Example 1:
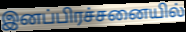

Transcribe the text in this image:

இனப்பிரச்சனையில்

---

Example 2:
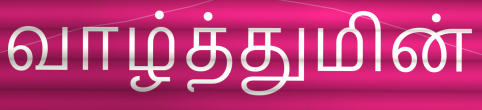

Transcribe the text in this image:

வாழ்த்துமின்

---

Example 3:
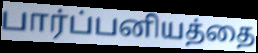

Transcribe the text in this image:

பார்ப்பனியத்தை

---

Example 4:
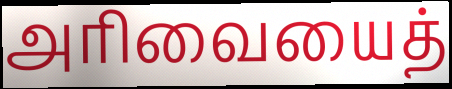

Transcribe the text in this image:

அரிவையைத்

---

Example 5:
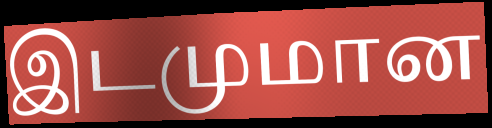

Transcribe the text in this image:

இடமுமான